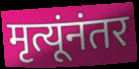
मृत्यूंनंतर